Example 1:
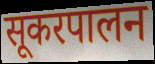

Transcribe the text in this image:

सूकरपालन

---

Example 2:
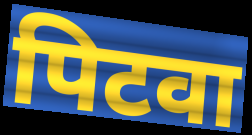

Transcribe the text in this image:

पिटवा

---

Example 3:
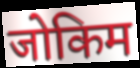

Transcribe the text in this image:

जोकिम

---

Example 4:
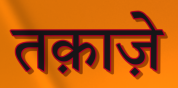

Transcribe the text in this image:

तक़ाज़े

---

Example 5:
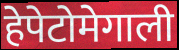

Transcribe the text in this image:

हेपेटोमेगाली